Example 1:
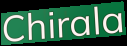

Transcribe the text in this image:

Chirala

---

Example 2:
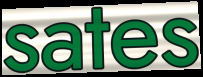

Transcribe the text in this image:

sates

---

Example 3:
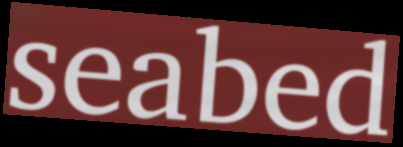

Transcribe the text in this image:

seabed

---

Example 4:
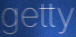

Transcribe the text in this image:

getty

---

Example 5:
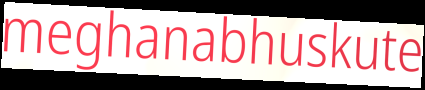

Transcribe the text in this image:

meghanabhuskute